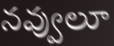
నవ్వులూ